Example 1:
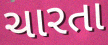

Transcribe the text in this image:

ચારતા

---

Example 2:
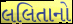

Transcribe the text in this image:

લલિતાનો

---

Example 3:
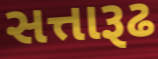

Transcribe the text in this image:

સત્તારૂઢ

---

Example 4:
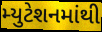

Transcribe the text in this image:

મ્યુટેશનમાંથી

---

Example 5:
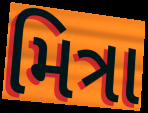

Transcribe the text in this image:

મિત્રા